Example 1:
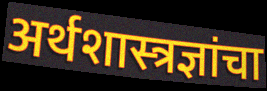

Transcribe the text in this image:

अर्थशास्त्रज्ञांचा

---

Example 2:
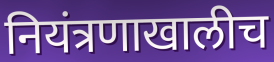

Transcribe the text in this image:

नियंत्रणाखालीच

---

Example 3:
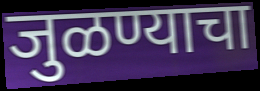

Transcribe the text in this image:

जुळण्याचा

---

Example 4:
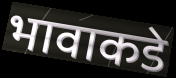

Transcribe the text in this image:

भावाकडे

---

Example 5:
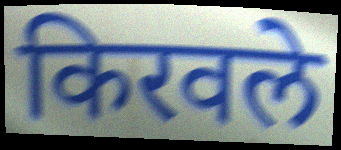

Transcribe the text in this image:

किरवले